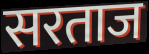
सरताज